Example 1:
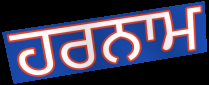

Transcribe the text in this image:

ਹਰਨਾਮ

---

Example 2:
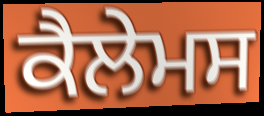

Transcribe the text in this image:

ਕੈਲੇਮਸ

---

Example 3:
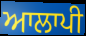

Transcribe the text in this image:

ਆਲਾਪੀ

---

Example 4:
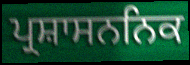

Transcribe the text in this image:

ਪ੍ਰਸ਼ਾਸਨਨਿਕ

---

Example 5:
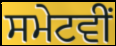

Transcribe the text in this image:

ਸਮੇਟਵੀਂ